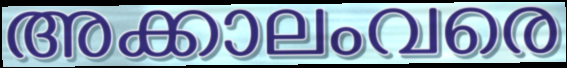
അക്കാലംവരെ